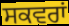
ਸਕਵਰਾਂ